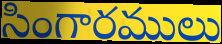
సింగారములు